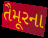
તૈમૂરના